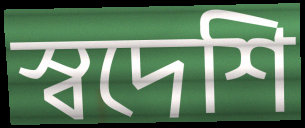
স্বদেশি